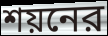
শয়নের